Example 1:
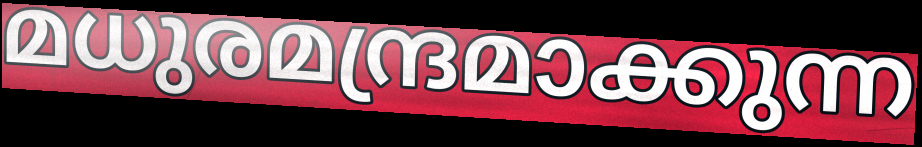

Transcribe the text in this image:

മധുരമന്ദ്രമാക്കുന്ന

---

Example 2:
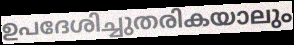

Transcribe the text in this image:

ഉപദേശിച്ചുതരികയാലും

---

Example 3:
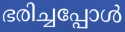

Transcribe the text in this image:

ഭരിച്ചപ്പോൾ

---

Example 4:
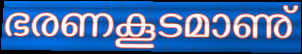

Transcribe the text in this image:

ഭരണകൂടമാണു്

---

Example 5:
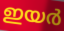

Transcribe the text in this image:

ഇയർ